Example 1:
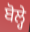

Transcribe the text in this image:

ਬੋਲ੍ਹੇ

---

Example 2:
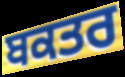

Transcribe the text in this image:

ਬਕਤਰ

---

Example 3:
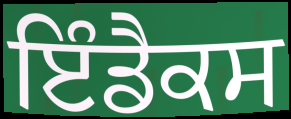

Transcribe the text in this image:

ਇੰਡੈਕਸ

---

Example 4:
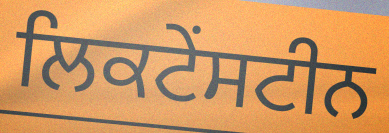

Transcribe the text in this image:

ਲਿਕਟੇਂਸਟੀਨ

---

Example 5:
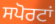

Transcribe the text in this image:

ਸਪੋਰਟਾਂ